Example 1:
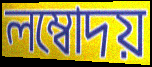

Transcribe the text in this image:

লম্বোদয়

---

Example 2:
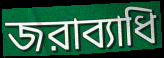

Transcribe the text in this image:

জরাব্যাধি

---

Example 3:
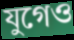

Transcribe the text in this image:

যুগেও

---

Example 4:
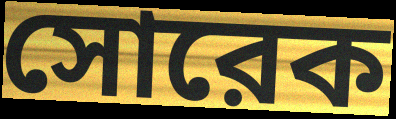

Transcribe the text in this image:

সোরেক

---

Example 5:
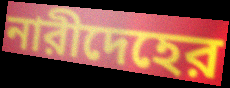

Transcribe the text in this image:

নারীদেহের